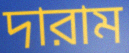
দারাম